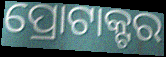
ପ୍ରୋଟାକ୍ଟର